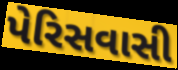
પેરિસવાસી